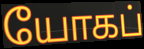
யோகப்